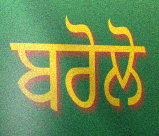
ਬਰੋਲੋ